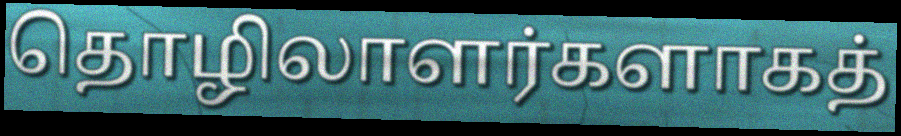
தொழிலாளர்களாகத்